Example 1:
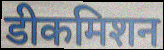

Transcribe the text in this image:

डीकमिशन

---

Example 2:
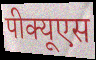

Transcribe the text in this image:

पीक्यूएस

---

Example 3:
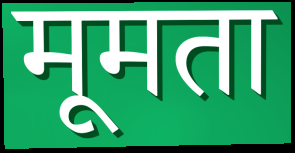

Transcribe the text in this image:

मूमता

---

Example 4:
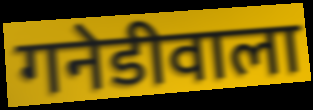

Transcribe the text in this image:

गनेडीवाला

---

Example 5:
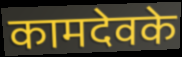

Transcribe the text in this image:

कामदेवके